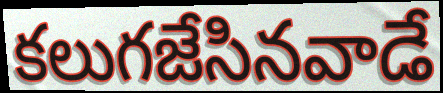
కలుగజేసినవాడే